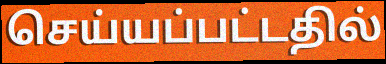
செய்யப்பட்டதில்